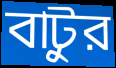
বাটুর